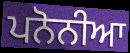
ਪਨੋਨੀਆ